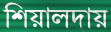
শিয়ালদায়